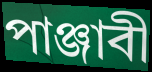
পাঞ্জাবী